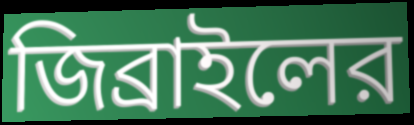
জিব্রাইলের